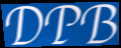
DPB